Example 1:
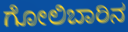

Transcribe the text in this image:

ಗೋಲಿಬಾರಿನ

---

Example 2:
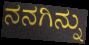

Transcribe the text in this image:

ನನಗಿನ್ನು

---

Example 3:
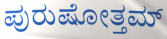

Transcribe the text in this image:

ಪುರುಷೋತ್ತಮ್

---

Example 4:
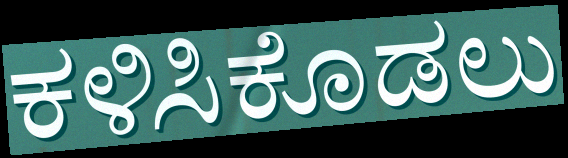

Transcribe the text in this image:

ಕಳಿಸಿಕೊಡಲು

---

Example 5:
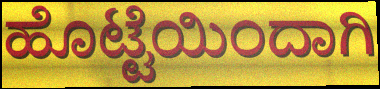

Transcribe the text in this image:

ಹೊಟ್ಟೆಯಿಂದಾಗಿ